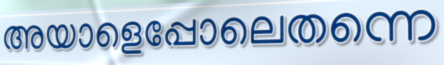
അയാളെപ്പോലെതന്നെ